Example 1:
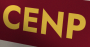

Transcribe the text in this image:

CENP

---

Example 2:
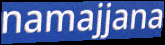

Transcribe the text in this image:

namajjana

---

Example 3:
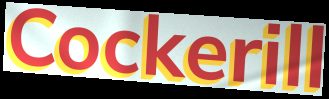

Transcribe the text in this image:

Cockerill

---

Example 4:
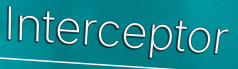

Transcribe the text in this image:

Interceptor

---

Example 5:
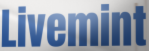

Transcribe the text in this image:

Livemint